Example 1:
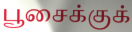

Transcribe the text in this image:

பூசைக்குக்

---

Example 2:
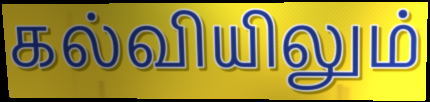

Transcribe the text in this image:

கல்வியிலும்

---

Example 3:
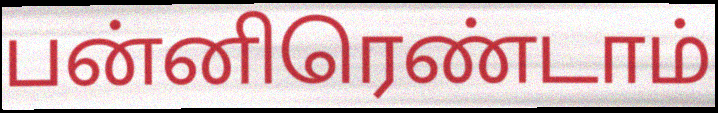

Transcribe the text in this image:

பன்னிரெண்டாம்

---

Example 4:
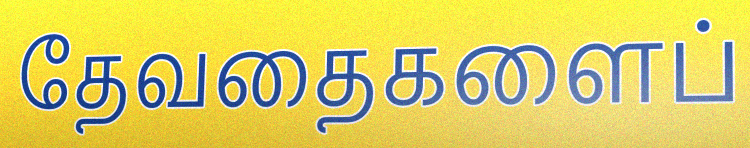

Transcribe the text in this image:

தேவதைகளைப்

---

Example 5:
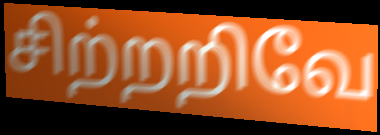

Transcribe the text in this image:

சிற்றறிவே